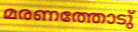
മരണത്തോടു്